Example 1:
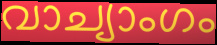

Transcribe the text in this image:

വാച്യാംഗം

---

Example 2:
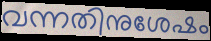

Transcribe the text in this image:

വന്നതിനുശേഷം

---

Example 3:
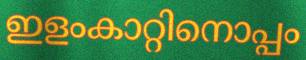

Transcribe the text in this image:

ഇളംകാറ്റിനൊപ്പം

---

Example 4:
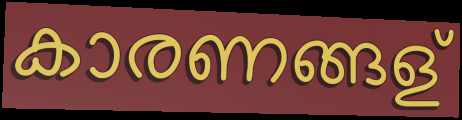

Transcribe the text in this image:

കാരണങ്ങള്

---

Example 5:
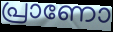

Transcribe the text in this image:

പ്രാണോ